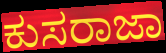
ಕುಸರಾಜಾ